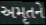
અમૃતને